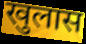
खुलास